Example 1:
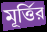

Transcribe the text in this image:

মূর্ত্তির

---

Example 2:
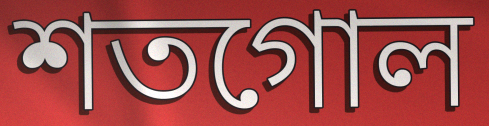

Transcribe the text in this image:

শতগোল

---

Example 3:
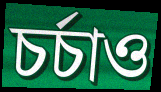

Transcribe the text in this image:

চর্চাও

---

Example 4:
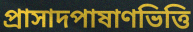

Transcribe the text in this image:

প্রাসাদপাষাণভিত্তি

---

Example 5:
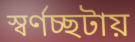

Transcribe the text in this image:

স্বর্ণচ্ছটায়